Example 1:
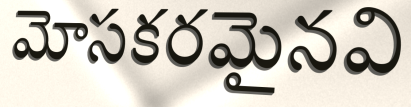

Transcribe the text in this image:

మోసకరమైనవి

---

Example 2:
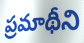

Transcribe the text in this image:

ప్రమాథీని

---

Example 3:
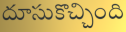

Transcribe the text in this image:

దూసుకొచ్చింది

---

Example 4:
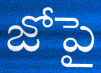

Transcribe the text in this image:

జోపై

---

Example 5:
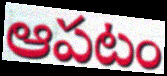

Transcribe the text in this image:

ఆపటం